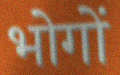
भोगों